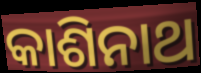
କାଶିନାଥ